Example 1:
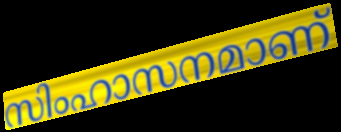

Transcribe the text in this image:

സിംഹാസനമാണ്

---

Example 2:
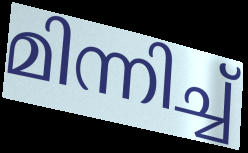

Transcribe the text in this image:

മിന്നിച്ച്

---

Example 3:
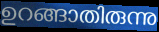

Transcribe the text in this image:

ഉറങ്ങാതിരുന്നു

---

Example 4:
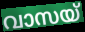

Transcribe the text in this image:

വാസയ്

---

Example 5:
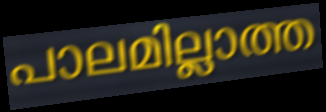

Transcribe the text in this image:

പാലമില്ലാത്ത